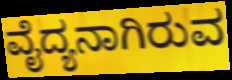
ವೈದ್ಯನಾಗಿರುವ